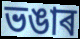
ভঙাৰ